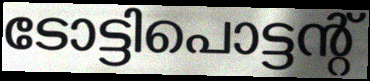
ടോട്ടിപൊട്ടന്റ്